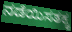
ನಡೆಯಿಸತಕ್ಕ